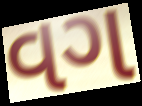
વગ